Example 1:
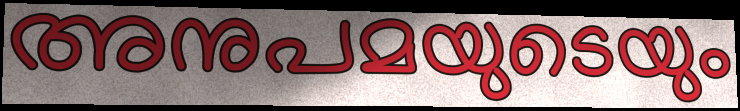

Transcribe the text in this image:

അനുപമയുടെയും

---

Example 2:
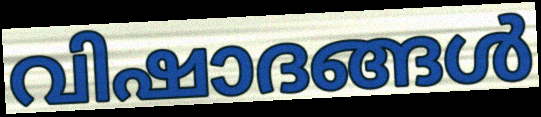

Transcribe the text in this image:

വിഷാദങ്ങൾ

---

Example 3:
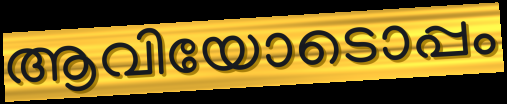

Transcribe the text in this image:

ആവിയോടൊപ്പം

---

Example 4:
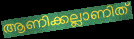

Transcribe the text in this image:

ആണിക്കല്ലാണിത്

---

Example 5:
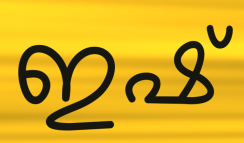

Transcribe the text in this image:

ഇഷ്